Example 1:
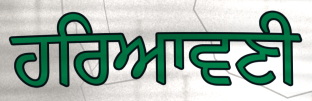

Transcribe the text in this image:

ਹਰਿਆਵਣੀ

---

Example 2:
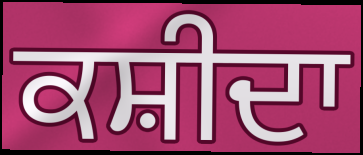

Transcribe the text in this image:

ਕਸ਼ੀਦਾ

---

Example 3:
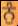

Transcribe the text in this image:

ਨੁੰ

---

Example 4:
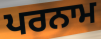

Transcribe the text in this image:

ਪਰਨਾਮ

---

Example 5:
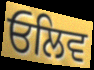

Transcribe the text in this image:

ਓਲਿਵ